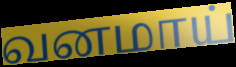
வனமாய்